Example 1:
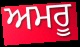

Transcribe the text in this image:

ਅਮਰੂ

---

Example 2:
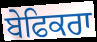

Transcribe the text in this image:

ਬੇਫਿਕਰਾ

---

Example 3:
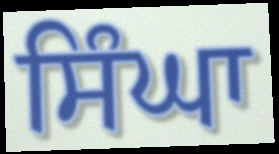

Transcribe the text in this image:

ਸਿੰਘਾ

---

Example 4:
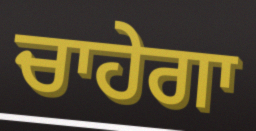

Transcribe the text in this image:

ਚਾਹੇਗਾ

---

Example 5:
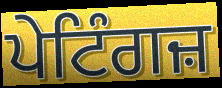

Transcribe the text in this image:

ਪੇਟਿੰਗਜ਼